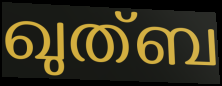
ഖുത്ബ